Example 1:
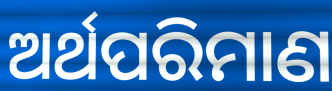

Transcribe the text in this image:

ଅର୍ଥପରିମାଣ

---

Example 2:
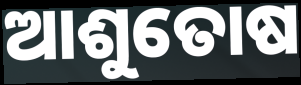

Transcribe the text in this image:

ଆଶୁତୋଷ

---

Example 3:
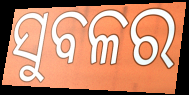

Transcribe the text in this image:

ସୁବଳର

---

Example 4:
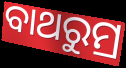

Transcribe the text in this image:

ବାଥରୁମ୍ର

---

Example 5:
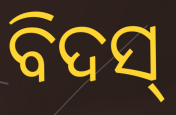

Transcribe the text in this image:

ବିଦସ୍